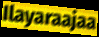
Ilayaraajaa